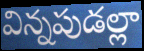
విన్నపుడల్లా